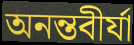
অনন্তবীর্যা